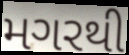
મગરથી